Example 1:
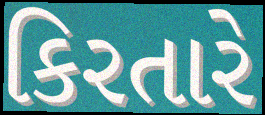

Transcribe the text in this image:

કિરતારે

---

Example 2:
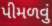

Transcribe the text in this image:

પીમળવું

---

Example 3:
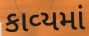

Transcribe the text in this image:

કાવ્‍યમાં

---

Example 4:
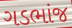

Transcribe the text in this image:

ગડભાંજ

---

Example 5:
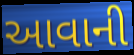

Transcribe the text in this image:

આવાની